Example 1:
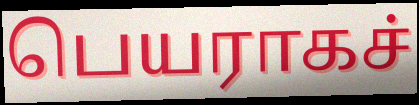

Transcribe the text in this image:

பெயராகச்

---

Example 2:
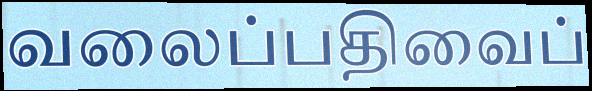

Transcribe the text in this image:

வலைப்பதிவைப்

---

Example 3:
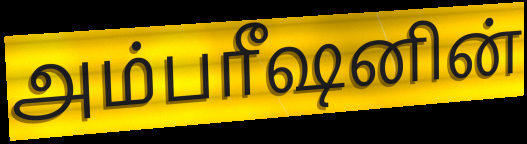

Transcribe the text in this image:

அம்பரீஷனின்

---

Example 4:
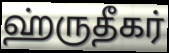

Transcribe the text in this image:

ஹ்ருதீகர்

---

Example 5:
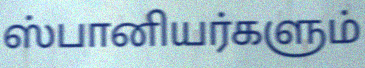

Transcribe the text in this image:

ஸ்பானியர்களும்